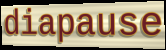
diapause